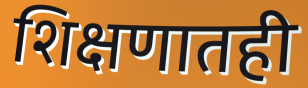
शिक्षणातही